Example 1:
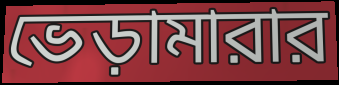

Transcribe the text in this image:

ভেড়ামারার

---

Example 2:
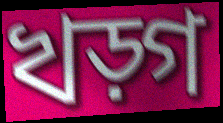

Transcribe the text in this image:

খড়্গ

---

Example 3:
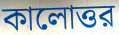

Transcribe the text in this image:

কালোত্তর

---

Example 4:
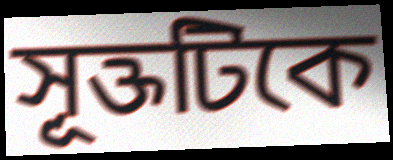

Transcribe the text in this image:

সূক্তটিকে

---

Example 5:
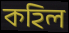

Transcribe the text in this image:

কহিল